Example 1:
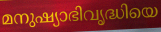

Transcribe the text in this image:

മനുഷ്യാഭിവൃദ്ധിയെ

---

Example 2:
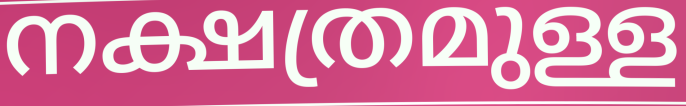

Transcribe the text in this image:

നക്ഷത്രമുള്ള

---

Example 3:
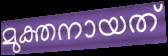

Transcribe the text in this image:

മുക്തനായത്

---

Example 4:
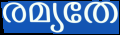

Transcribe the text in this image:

രമ്യതേ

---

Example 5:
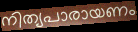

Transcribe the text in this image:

നിത്യപാരായണം